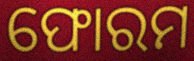
ଫୋରମ